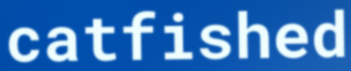
catfished